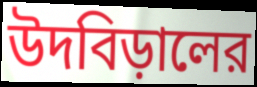
উদবিড়ালের